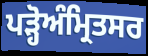
ਪੜ੍ਹੋਅੰਮ੍ਰਿਤਸਰ